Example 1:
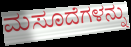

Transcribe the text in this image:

ಮಸೂದೆಗಳನ್ನು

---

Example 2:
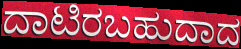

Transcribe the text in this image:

ದಾಟಿರಬಹುದಾದ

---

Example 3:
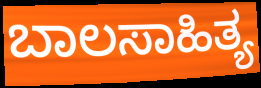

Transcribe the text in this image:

ಬಾಲಸಾಹಿತ್ಯ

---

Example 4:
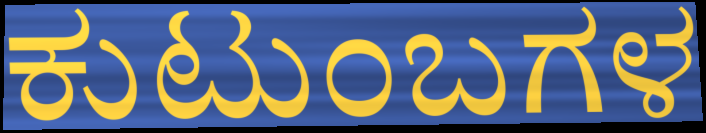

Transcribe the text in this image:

ಕುಟುಂಬಗಳ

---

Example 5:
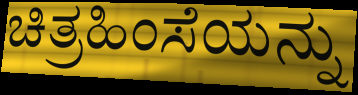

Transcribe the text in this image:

ಚಿತ್ರಹಿಂಸೆಯನ್ನು